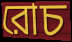
রোচ